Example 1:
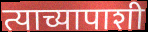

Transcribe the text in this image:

त्याच्यापाशी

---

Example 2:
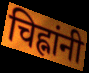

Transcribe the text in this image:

चिह्नांनी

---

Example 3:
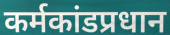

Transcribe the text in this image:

कर्मकांडप्रधान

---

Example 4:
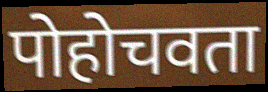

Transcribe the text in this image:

पोहोचवता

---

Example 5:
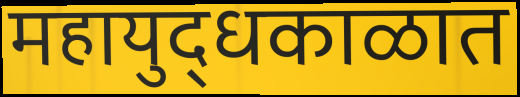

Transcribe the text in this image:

महायुद्धकाळात